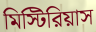
মিস্টিরিয়াস